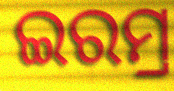
ଇରମ୍ର